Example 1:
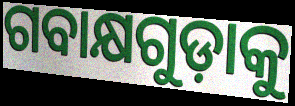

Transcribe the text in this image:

ଗବାକ୍ଷଗୁଡ଼ାକୁ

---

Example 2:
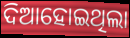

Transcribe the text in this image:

ଦିଆହୋଇଥିଲା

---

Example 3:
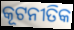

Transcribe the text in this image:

କୂଟନୀତିକ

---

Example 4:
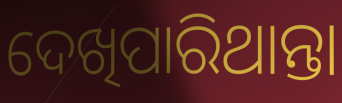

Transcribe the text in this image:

ଦେଖିପାରିଥାନ୍ତା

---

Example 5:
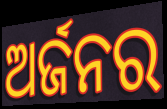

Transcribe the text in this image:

ଅର୍ଜନର